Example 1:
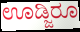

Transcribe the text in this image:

ಊಡ್ಜಿರೂ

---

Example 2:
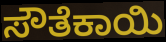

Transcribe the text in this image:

ಸೌತೆಕಾಯಿ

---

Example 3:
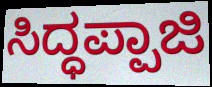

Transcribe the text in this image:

ಸಿದ್ಧಪ್ಪಾಜಿ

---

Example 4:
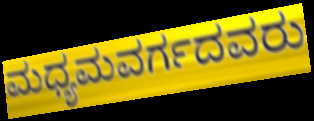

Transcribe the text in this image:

ಮಧ್ಯಮವರ್ಗದವರು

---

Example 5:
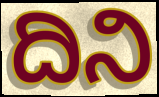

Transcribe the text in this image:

ದಿನಿ